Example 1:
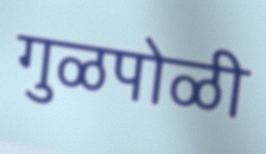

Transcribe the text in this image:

गुळपोळी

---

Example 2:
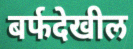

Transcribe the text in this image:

बर्फदेखील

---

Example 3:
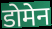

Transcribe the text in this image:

डोमेन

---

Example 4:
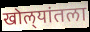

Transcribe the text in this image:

खोल्यांतला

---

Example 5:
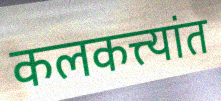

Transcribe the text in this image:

कलकत्त्यांत